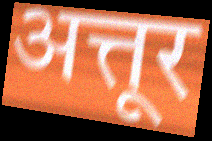
अत्तूर